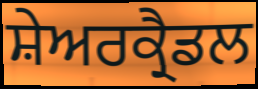
ਸ਼ੇਅਰਕ੍ਰੈਡਲ